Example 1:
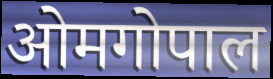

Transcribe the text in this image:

ओमगोपाल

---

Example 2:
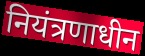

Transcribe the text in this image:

नियंत्रणाधीन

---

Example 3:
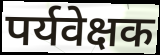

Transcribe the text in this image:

पर्यवेक्षक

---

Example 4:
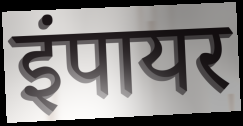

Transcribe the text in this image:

इंपायर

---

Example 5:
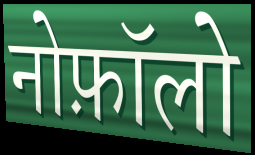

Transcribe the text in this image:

नोफ़ॉलो